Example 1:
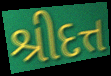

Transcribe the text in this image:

શ્રીદત્ત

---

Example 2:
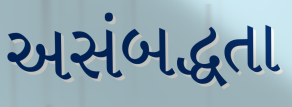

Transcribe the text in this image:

અસંબદ્ધતા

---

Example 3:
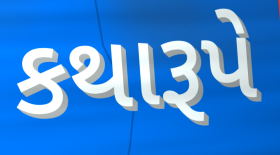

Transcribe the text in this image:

કથારૂપે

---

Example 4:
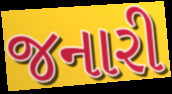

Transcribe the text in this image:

જનારી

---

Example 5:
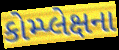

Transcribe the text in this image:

કોમ્પ્લેક્ષના